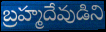
బ్రహ్మదేవుడిని